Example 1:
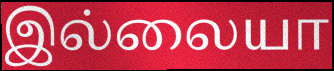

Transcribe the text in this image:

இல்லையா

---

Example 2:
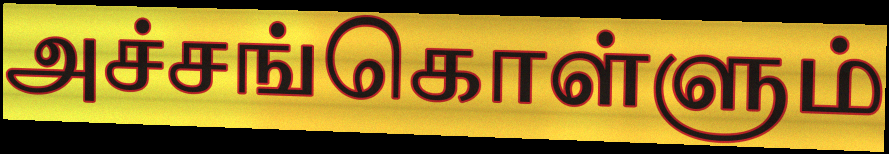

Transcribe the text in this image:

அச்சங்கொள்ளும்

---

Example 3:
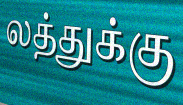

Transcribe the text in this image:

லத்துக்கு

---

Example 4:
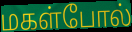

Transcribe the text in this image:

மகள்போல்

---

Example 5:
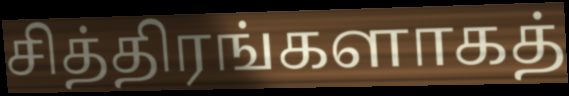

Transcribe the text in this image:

சித்திரங்களாகத்